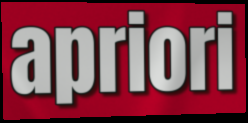
apriori